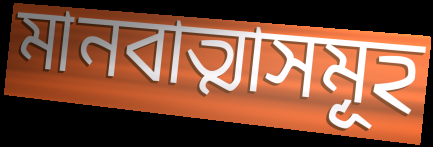
মানবাত্মাসমূহ